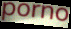
porno